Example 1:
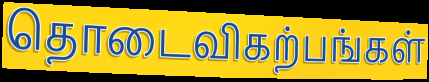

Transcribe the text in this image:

தொடைவிகற்பங்கள்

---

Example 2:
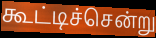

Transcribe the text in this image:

கூட்டிச்சென்று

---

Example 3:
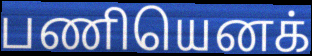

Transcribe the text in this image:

பணியெனக்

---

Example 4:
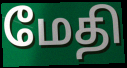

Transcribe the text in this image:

மேதி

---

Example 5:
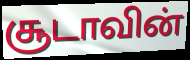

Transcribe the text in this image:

சூடாவின்